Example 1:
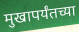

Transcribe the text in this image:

मुखापर्यंतच्या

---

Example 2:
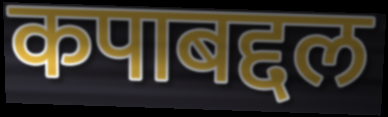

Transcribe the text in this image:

कपाबद्दल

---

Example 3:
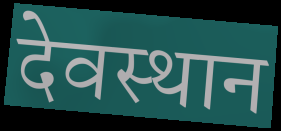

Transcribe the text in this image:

देवस्थान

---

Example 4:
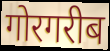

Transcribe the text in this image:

गोरगरीब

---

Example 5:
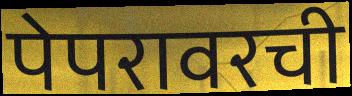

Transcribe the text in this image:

पेपरावरची